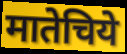
मातेचिये